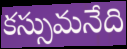
కస్సుమనేది